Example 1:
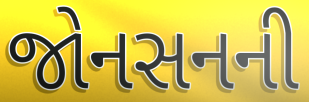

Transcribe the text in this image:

જોનસનની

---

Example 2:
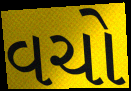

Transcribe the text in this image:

વચો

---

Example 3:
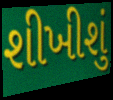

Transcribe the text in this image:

શીખીશું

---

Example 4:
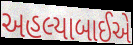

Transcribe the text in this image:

અહલ્યાબાઈએ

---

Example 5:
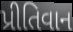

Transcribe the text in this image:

પ્રીતિવાન